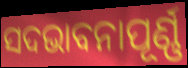
ସଦଭାବନାପୂର୍ଣ୍ଣ